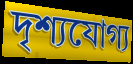
দৃশ্যযোগ্য